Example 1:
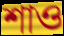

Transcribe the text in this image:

শাও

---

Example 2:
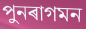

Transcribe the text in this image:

পুনৰাগমন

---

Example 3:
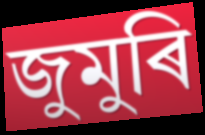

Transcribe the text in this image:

জুমুৰি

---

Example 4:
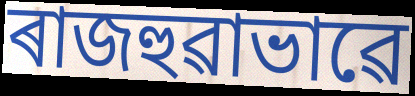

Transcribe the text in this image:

ৰাজহুৱাভাৱে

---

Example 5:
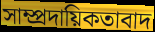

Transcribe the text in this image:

সাম্প্ৰদায়িকতাবাদ